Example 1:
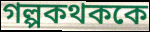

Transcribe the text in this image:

গল্পকথককে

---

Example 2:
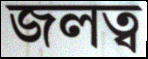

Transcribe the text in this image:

জলত্ব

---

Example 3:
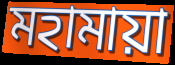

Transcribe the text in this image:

মহামায়া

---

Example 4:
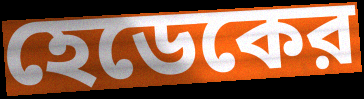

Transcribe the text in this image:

হেডেকের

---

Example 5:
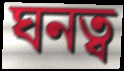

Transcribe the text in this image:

ঘনত্ব